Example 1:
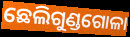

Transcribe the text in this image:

ଛେଲିଗୁଣ୍ଡଗୋଳା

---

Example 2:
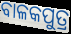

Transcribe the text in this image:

ବାଳକପୁତ୍ର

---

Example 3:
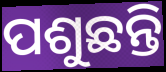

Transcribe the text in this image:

ପଶୁଛନ୍ତି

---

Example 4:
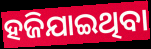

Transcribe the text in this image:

ହଜିଯାଇଥିବା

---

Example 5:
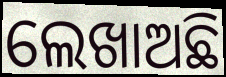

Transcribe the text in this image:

ଲେଖାଅଛି